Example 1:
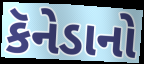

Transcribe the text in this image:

કૅનેડાનો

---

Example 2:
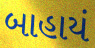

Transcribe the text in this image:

બાહાયં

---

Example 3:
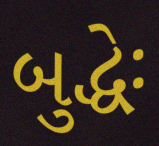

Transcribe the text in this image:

બુદ્ધેઃ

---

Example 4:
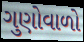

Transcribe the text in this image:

ગુણોવાળો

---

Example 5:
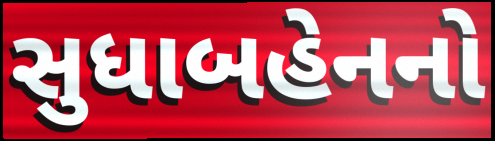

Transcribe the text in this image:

સુધાબહેનનો